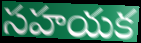
సహయక